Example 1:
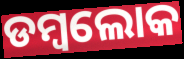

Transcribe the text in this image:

ଡମ୍ବଲୋକ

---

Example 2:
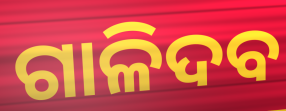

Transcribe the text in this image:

ଗାଳିଦବ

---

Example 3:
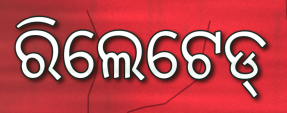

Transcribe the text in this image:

ରିଲେଟେଡ୍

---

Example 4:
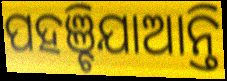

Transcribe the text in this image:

ପହଞ୍ଚିଯାଆନ୍ତି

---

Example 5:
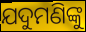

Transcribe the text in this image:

ଯଦୁମଣିଙ୍କୁ